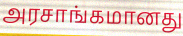
அரசாங்கமானது